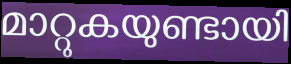
മാറ്റുകയുണ്ടായി